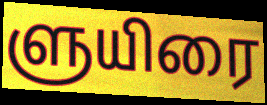
ளுயிரை